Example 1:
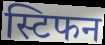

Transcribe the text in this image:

स्टिफन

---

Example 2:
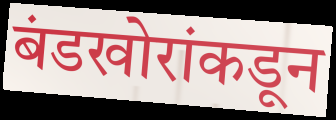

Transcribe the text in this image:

बंडखोरांकडून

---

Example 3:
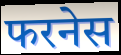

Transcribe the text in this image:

फरनेस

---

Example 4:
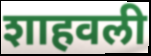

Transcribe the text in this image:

शाहवली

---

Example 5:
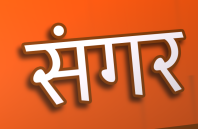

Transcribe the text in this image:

संगर